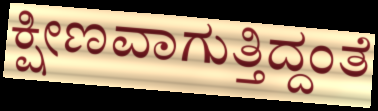
ಕ್ಷೀಣವಾಗುತ್ತಿದ್ದಂತೆ